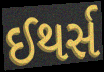
ઈથર્સ